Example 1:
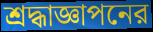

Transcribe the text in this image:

শ্রদ্ধাজ্ঞাপনের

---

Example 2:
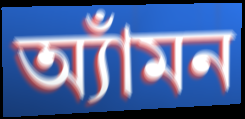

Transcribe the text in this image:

অ্যাঁমন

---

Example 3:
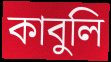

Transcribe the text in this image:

কাবুলি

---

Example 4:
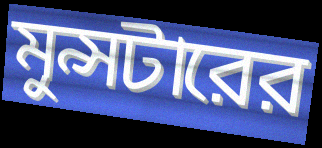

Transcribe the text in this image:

মুন্সটারের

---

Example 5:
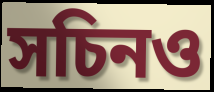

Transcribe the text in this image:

সচিনও